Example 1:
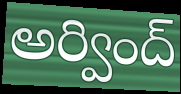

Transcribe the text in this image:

అర్వింద్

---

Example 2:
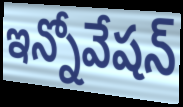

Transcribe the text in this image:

ఇన్నోవేషన్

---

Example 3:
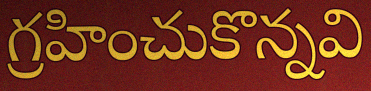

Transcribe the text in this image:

గ్రహించుకొన్నవి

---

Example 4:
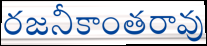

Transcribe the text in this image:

రజనీకాంతరావు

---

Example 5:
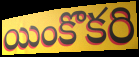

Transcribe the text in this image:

యింకొకరి